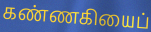
கண்ணகியைப்